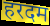
हरदम